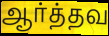
ஆர்த்தவ